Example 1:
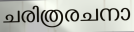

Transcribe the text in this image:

ചരിത്രരചനാ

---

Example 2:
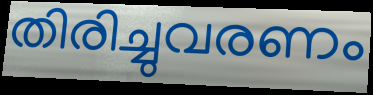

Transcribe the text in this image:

തിരിച്ചുവരണം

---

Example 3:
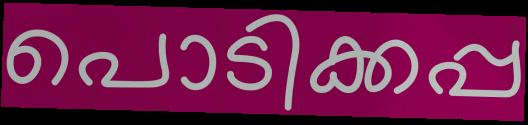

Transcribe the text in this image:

പൊടിക്കപ്പ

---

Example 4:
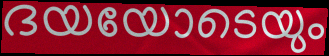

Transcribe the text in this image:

ദയയോടെയും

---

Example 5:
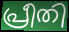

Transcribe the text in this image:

പ്രീതി